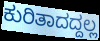
ಕುರಿತಾದದ್ದಲ್ಲ